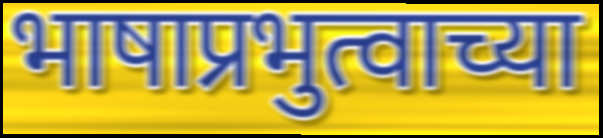
भाषाप्रभुत्वाच्या